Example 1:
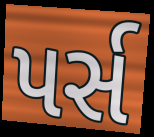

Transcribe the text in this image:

પર્સ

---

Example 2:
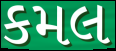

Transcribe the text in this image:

કમલ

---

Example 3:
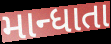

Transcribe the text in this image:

માન્ધાતા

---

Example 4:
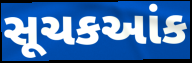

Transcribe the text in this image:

સૂચકઆંક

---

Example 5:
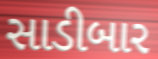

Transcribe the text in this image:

સાડીબાર